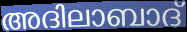
അദിലാബാദ്